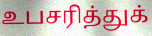
உபசரித்துக்